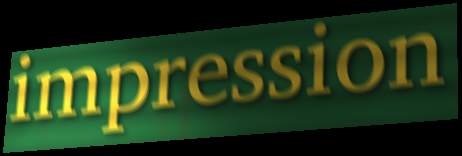
impression